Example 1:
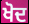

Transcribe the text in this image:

ਖੋਦ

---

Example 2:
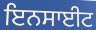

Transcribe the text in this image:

ਇਨਸਾਈਟ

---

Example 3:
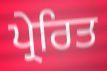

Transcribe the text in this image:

ਪ੍ਰ੍ਰੇਰਿਤ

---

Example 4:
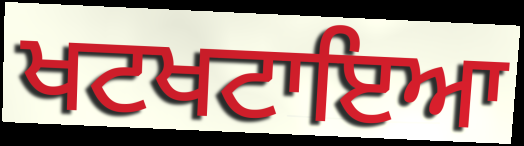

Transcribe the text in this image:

ਖਟਖਟਾਇਆ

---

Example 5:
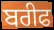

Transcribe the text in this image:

ਬਰੀਫ